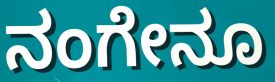
ನಂಗೇನೂ